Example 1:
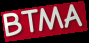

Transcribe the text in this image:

BTMA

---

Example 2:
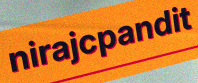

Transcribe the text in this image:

nirajcpandit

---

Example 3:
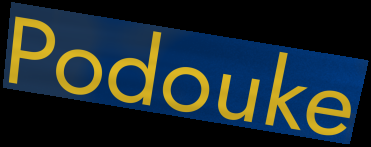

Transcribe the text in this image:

Podouke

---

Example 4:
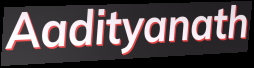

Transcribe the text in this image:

Aadityanath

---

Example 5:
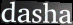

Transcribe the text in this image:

dasha